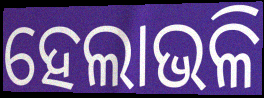
ହେଲାଭଳି